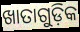
ଖାତାଗୁଡ଼ିକ